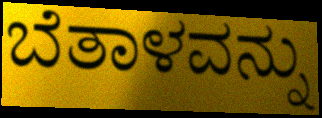
ಬೆತಾಳವನ್ನು